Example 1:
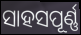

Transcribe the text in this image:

ସାହସପୂର୍ଣ୍ଣ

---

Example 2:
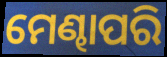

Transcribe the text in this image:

ମେଣ୍ଢାପରି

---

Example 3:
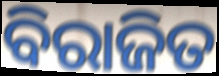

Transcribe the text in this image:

ବିରାଜିତ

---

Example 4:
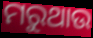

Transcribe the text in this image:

ମରୁଥାଉ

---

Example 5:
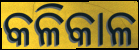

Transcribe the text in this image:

କଳିକାଳ